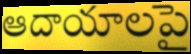
ఆదాయాలపై